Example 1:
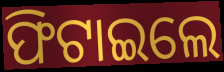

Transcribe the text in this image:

ଫିଟାଇଲେ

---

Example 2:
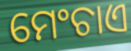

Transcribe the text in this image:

ମେଂଚାଏ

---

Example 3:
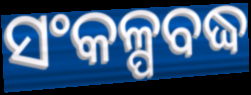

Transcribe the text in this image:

ସଂକଳ୍ପବଦ୍ଧ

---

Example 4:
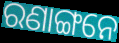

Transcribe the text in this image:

ରଣାଙ୍ଗନେ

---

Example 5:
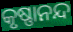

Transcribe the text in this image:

କୃଷ୍ଣାନନ୍ଦ